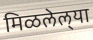
मिळलेल्या